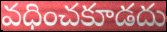
వధించకూడదు